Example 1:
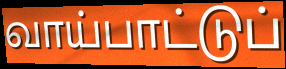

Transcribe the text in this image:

வாய்பாட்டுப்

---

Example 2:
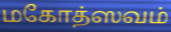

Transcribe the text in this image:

மகோத்ஸவம்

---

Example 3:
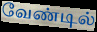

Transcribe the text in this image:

வேண்டில்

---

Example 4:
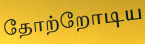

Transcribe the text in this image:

தோற்றோடிய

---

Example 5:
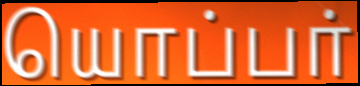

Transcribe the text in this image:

யொப்பர்